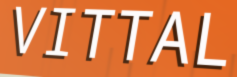
VITTAL